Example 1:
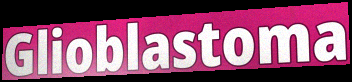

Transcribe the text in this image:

Glioblastoma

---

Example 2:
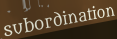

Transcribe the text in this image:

subordination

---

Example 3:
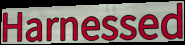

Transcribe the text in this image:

Harnessed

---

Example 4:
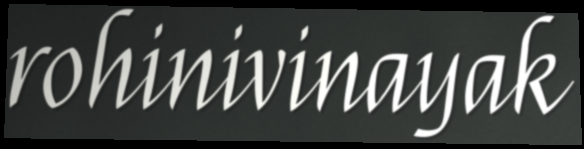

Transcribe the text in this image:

rohinivinayak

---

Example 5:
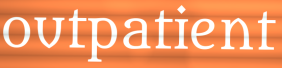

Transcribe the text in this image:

outpatient